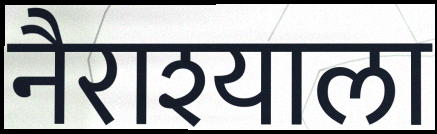
नैराश्याला